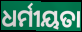
ଧର୍ମୀୟତା